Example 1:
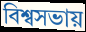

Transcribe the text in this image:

বিশ্বসভায়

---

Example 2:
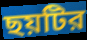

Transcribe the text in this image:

ছয়টির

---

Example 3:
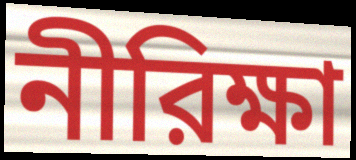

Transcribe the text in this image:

নীরিক্ষা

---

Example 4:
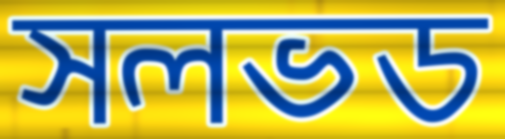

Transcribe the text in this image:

সলভড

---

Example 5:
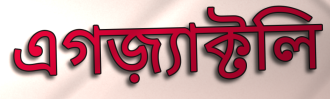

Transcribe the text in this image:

এগজ়্যাক্টলি